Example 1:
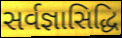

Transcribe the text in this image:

સર્વજ્ઞાસિદ્ધિ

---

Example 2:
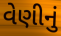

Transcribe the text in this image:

વેણીનું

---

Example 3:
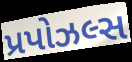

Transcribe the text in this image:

પ્રપોઝલ્સ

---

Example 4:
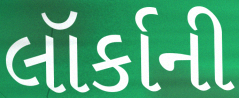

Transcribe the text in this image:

લૉર્કાની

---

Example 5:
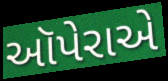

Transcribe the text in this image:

ઑપેરાએ